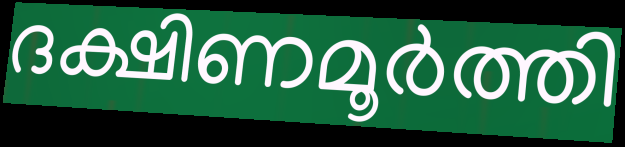
ദക്ഷിണമൂർത്തി